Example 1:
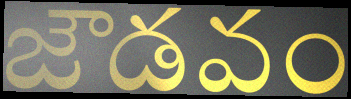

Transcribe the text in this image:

జౌడవం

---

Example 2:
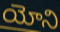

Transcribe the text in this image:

యోని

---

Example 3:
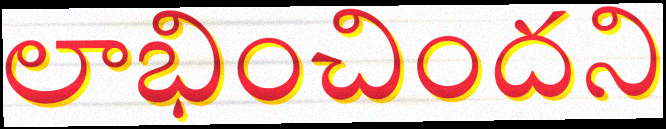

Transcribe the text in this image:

లాభించిందని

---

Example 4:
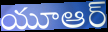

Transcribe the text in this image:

యూఆర్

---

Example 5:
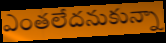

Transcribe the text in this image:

ఎంతలేదనుకున్నా